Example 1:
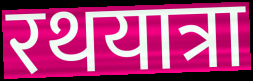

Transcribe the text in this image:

रथयात्रा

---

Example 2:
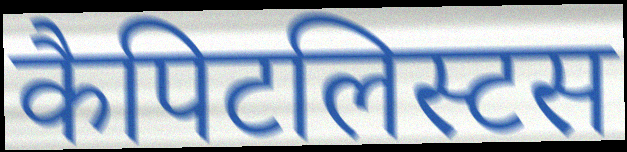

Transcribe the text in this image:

कैपिटलिस्टस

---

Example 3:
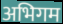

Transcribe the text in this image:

अभिगम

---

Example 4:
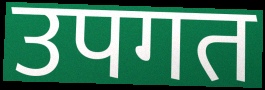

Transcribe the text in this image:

उपगत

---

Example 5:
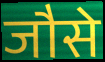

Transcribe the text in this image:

जौसे